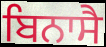
ਬਿਨਾਸੈ